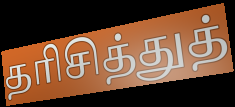
தரிசித்துத்